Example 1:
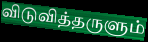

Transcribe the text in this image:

விடுவித்தருளும்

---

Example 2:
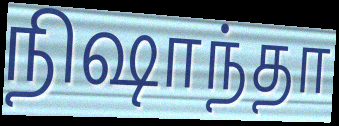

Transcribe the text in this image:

நிஷாந்தா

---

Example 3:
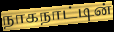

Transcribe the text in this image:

நாகநாட்டின்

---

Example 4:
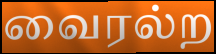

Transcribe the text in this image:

வைரல்ற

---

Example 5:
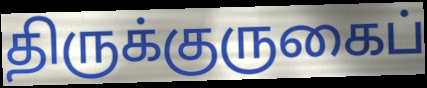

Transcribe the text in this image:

திருக்குருகைப்